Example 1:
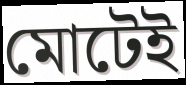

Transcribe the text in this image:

মোটেই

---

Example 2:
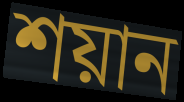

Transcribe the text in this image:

শয়ান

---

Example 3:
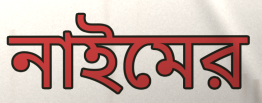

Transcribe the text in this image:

নাইমের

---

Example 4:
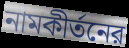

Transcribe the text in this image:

নামকীর্তনের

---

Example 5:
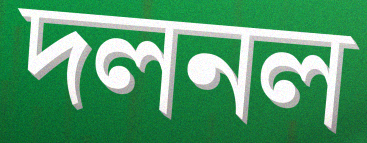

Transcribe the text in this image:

দলনল